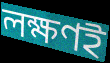
লক্ষণই